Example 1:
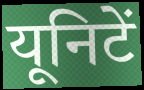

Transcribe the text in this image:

यूनिटें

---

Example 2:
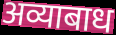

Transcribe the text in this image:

अव्याबाध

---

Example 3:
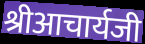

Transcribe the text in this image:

श्रीआचार्यजी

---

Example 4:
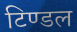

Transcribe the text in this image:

टिण्डल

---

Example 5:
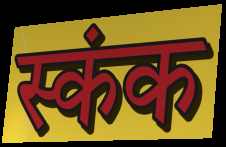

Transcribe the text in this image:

स्कंक